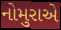
નોમુરાએ